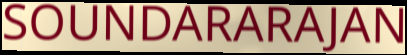
SOUNDARARAJAN